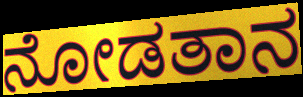
ನೋಡತಾನ